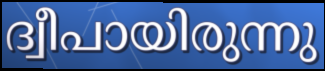
ദ്വീപായിരുന്നു